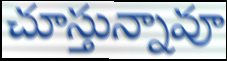
చూస్తున్నావూ